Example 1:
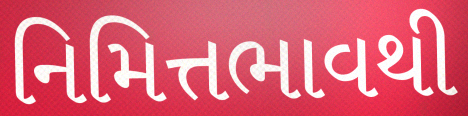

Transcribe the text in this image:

નિમિત્તભાવથી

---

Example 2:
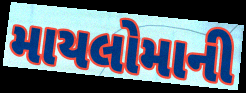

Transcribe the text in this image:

માયલોમાની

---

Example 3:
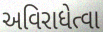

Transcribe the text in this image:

અવિરાધેત્વા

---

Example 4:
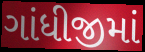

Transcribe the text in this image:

ગાંધીજીમાં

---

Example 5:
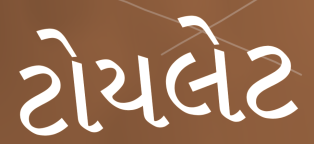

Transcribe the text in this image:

ટોયલેટ